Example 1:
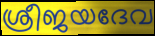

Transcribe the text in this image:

ശ്രീജയദേവ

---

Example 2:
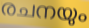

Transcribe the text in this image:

രചനയും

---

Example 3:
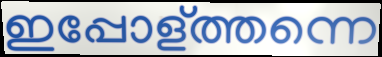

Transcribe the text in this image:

ഇപ്പോള്ത്തന്നെ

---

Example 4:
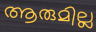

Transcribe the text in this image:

ആരുമില്ല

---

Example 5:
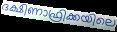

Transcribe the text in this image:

ദക്ഷിണാഫ്രിക്കയിലെ